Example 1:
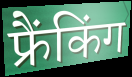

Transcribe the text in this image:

फ्रैंकिंग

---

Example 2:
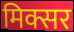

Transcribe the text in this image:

मिक्सर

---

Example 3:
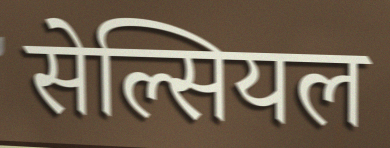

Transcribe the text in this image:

सेल्सियल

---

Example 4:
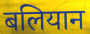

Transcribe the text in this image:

बलियान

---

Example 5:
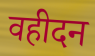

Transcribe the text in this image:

वहीदन